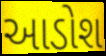
આડોશ